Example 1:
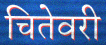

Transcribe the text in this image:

चितेवरी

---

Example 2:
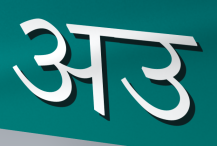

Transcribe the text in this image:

अउ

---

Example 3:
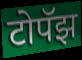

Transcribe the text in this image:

टोपॅझ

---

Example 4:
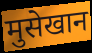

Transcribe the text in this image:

मुसेखान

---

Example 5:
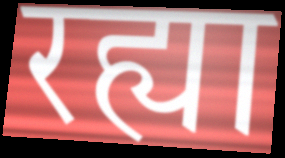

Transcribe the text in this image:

रह्या